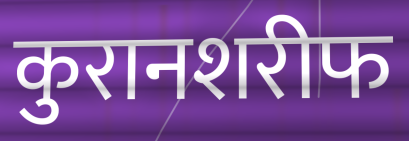
कुरानशरीफ